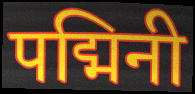
पद्मिनी